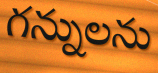
గన్నులను